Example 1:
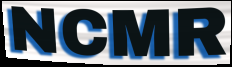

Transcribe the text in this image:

NCMR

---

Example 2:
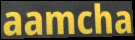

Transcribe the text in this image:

aamcha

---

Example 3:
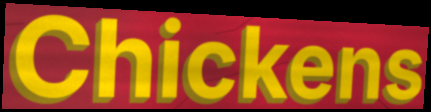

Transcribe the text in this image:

Chickens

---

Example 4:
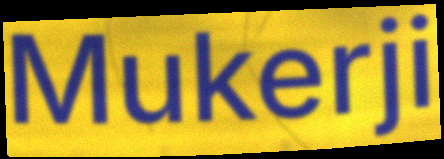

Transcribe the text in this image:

Mukerji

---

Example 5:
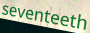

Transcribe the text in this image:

seventeeth